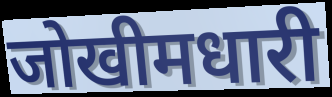
जोखीमधारी